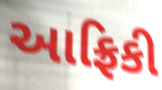
આફ્રિકી